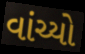
વાંચ્યો